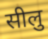
सीलु